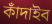
কাঁদাইব